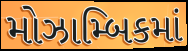
મોઝામ્બિકમાં